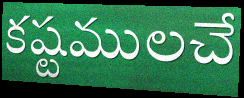
కష్టములచే